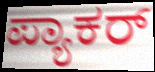
ಪ್ಯಾಕರ್